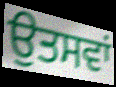
ਉਤਸਵਾਂ